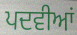
ਪਦਵੀਆਂ